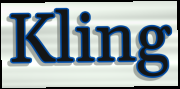
Kling